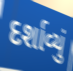
દર્શાવ્યું